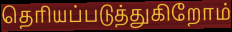
தெரியப்படுத்துகிறோம்